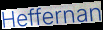
Heffernan